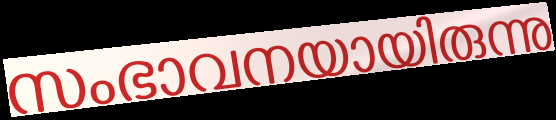
സംഭാവനയായിരുന്നു